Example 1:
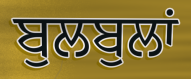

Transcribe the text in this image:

ਬੁਲਬੁਲਾਂ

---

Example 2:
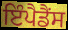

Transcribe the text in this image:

ਇੰਪੈਡੈਂਸ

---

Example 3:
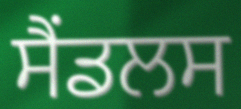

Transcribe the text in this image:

ਸੈਂਡਲਸ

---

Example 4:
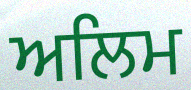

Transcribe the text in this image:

ਅਲਿਮ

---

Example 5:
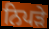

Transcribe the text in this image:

ਨਿਪੜੇ